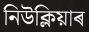
নিউক্লিয়াৰ